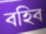
বহিব